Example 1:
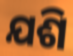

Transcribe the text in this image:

ଯଶି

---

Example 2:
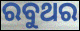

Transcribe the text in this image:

ରବୁଥର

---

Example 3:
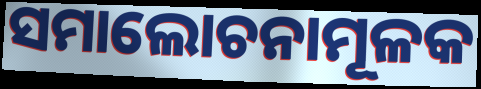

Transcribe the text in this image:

ସମାଲୋଚନାମୂଳକ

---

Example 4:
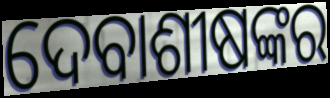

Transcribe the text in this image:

ଦେବାଶୀଷଙ୍କର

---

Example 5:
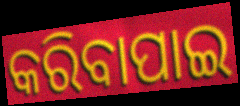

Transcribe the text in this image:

କରିବାପାଇ